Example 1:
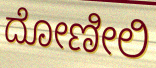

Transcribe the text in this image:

ದೋಣೀಲಿ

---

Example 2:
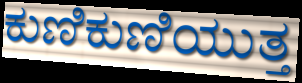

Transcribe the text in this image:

ಕುಣಿಕುಣಿಯುತ್ತ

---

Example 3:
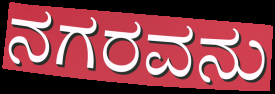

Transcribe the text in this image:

ನಗರವನು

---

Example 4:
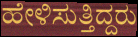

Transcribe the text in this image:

ಹೇಳಿಸುತ್ತಿದ್ದರು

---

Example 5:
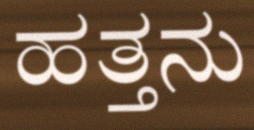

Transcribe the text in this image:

ಹತ್ತನು